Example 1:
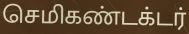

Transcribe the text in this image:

செமிகண்டக்டர்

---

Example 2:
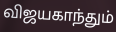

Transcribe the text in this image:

விஜயகாந்தும்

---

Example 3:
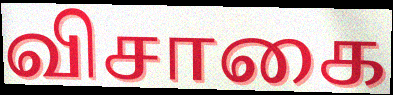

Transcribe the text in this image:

விசாகை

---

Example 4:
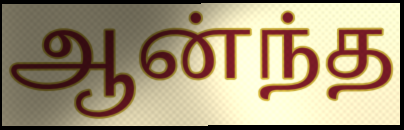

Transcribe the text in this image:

ஆன்ந்த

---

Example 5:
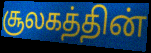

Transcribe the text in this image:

சூலகத்தின்